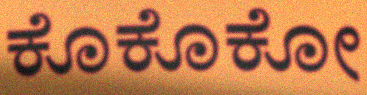
ಕೊಕೊಕೋ